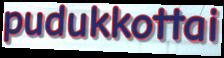
pudukkottai